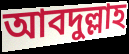
আবদুল্লাহ